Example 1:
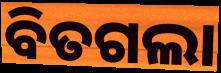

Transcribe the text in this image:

ବିତଗଲା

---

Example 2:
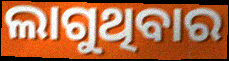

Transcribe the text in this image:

ଲାଗୁଥିବାର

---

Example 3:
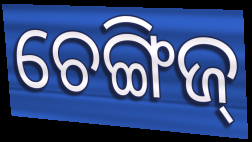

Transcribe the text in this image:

ଚେଙ୍ଗିଜ୍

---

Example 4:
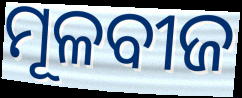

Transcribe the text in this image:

ମୂଳବୀଜ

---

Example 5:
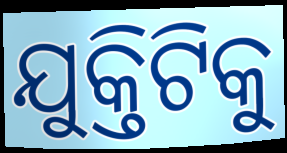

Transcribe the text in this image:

ଯୁକ୍ତିଟିକୁ